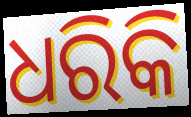
ଧରିକି